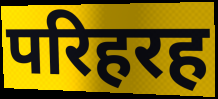
परिहरह